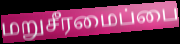
மறுசீரமைப்பை